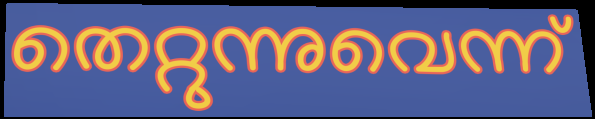
തെറ്റുന്നുവെന്ന്